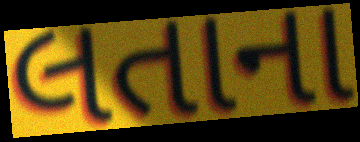
લતાના